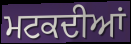
ਮਟਕਦੀਆਂ